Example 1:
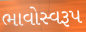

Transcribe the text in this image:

ભાવોસ્વરૂપ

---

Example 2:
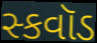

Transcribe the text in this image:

સ્કવૉડ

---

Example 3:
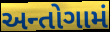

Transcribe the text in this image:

અન્તોગામં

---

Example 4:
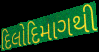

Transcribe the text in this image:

દિલોદિમાગથી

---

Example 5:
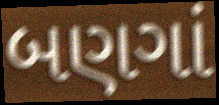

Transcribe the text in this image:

બણગાં